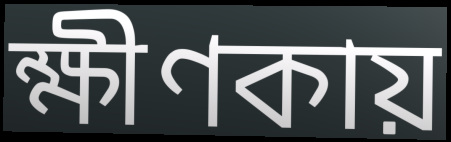
ক্ষীণকায়